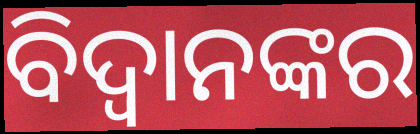
ବିଦ୍ୱାନଙ୍କର